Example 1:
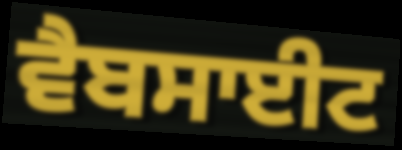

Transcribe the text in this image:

ਵੈਬਸਾਈਟ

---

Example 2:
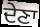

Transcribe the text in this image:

ਦੇਣਾ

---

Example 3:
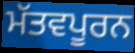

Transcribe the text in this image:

ਮੱਤਵਪੂਰਨ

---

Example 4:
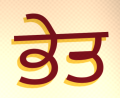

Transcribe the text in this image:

ਭੇਤ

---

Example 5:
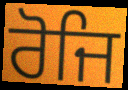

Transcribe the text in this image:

ਰੋਜਿ